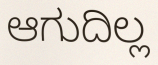
ಆಗುದಿಲ್ಲ